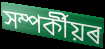
সম্পৰ্কীয়ৰ